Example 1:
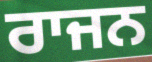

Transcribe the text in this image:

ਰਾਜਨ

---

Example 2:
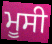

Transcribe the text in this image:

ਮੂਸੀ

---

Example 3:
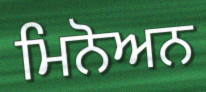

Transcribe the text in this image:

ਮਿਨੋਅਨ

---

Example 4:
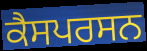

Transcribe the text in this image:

ਕੈਸਪਰਸਨ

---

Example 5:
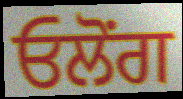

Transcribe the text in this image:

ਓਲੋਂਗ